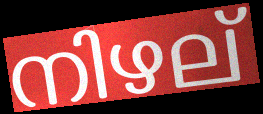
നിഴല്